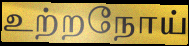
உற்றநோய்